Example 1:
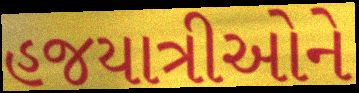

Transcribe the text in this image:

હજયાત્રીઓને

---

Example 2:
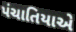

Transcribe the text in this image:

પંચાતિયાએ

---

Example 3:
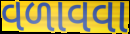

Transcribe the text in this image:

વળાવવા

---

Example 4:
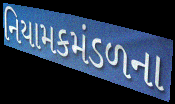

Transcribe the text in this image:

નિયામકમંડળના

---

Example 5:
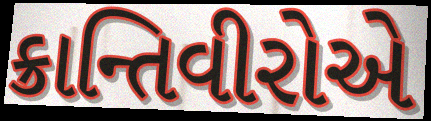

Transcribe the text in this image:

ક્રાન્તિવીરોએ